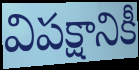
విపక్షానికీ